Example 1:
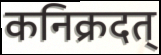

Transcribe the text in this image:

कनिक्रदत्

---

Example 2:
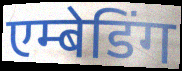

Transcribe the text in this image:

एम्बेडिंग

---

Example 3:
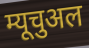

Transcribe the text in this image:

म्यूचुअल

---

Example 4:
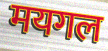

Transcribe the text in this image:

मयगल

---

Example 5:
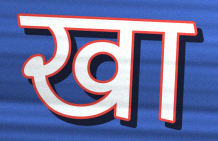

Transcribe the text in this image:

खा